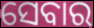
ସେବାର